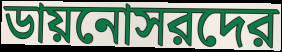
ডায়নোসরদের